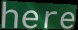
here